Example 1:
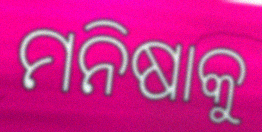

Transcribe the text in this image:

ମନିଷାକୁ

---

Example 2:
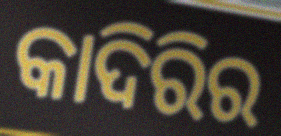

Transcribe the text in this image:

କାଦିରିର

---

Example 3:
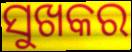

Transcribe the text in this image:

ସୁଖକର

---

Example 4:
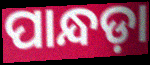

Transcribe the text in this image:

ପାନ୍ଧଡ଼ା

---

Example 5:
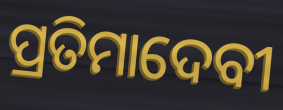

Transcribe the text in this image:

ପ୍ରତିମାଦେବୀ